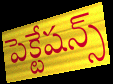
పెక్టేషన్స్